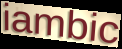
iambic